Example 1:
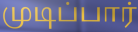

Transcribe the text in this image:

முடிப்பார்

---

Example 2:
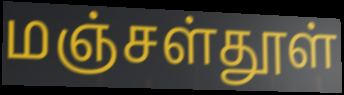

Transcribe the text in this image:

மஞ்சள்தூள்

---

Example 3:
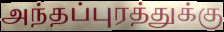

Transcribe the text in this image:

அந்தப்புரத்துக்கு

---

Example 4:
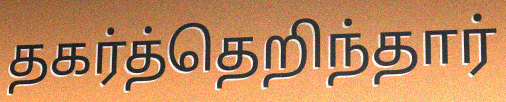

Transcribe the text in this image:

தகர்த்தெறிந்தார்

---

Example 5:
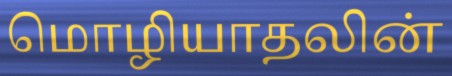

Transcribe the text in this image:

மொழியாதலின்